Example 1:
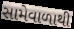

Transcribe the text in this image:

સામેવાળાથી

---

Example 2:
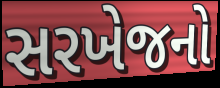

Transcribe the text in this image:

સરખેજનો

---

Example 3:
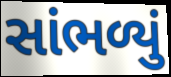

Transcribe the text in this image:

સાંભળ્યું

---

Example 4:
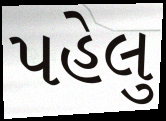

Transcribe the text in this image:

પહેલુ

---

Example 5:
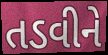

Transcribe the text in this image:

તડવીને